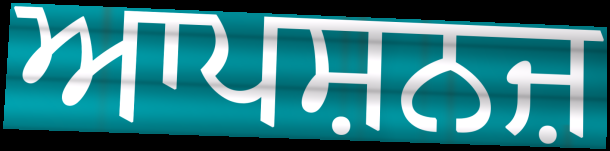
ਆਪਸ਼ਨਜ਼